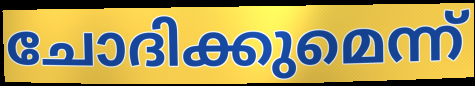
ചോദിക്കുമെന്ന്